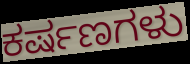
ಕರ್ಷಣಗಳು